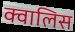
क्वालिस